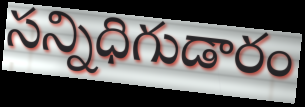
సన్నిధిగుడారం